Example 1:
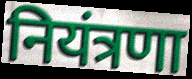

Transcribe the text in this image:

नियंत्रणा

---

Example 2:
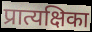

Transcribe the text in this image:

प्रात्यक्षिका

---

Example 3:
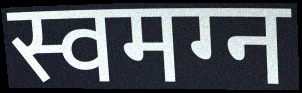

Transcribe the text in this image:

स्वमग्न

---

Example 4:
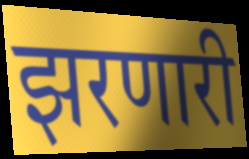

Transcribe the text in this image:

झरणारी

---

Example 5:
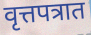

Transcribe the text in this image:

वृत्तपत्रात